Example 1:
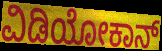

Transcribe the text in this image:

ವಿಡಿಯೋಕಾನ್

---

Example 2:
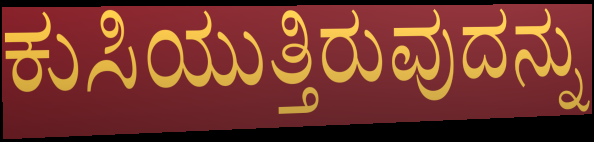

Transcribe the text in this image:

ಕುಸಿಯುತ್ತಿರುವುದನ್ನು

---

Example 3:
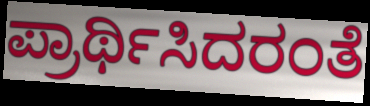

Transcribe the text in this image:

ಪ್ರಾರ್ಥಿಸಿದರಂತೆ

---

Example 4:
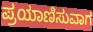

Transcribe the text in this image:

ಪ್ರಯಾಣಿಸುವಾಗ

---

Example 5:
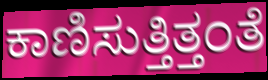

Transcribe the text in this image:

ಕಾಣಿಸುತ್ತಿತ್ತಂತೆ